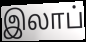
இலாப்